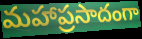
మహాప్రసాదంగా